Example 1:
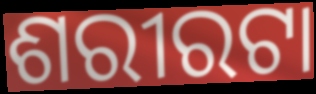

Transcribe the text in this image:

ଶରୀରଟା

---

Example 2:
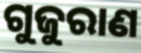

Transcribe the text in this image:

ଗୁଜୁରାଣ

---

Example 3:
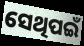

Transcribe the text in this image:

ସେଥିପଇଁ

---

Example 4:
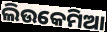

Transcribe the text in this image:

ଲିଉକେମିଆ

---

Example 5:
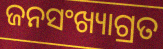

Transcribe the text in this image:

ଜନସଂଖ୍ୟାଗ୍ରତ